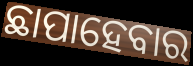
ଛାପାହେବାର